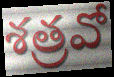
శత్రవో